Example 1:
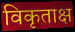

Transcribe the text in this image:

विकृताक्ष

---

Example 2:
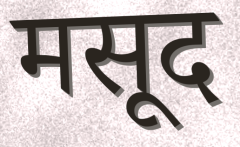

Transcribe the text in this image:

मसूद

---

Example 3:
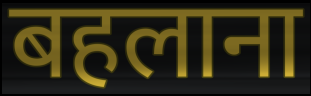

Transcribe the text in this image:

बहलाना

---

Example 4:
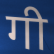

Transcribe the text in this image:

गी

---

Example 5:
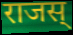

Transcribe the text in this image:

राजस्